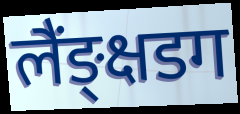
लैंङ्क्षडग